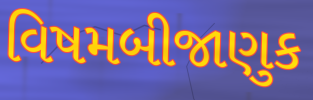
વિષમબીજાણુક